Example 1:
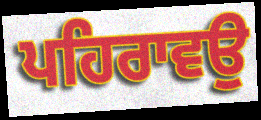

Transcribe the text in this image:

ਪਹਿਰਾਵਉ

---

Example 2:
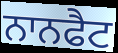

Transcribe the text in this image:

ਨਾਨਫੈਟ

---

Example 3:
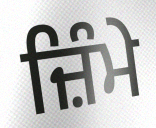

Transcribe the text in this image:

ਜ਼ਿੰਮੇ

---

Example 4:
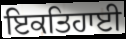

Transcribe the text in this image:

ਇਕਤਿਹਾਈ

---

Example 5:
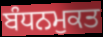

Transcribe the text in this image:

ਬੰਧਨਮੁਕਤ